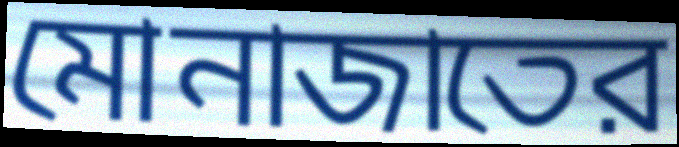
মোনাজাতের